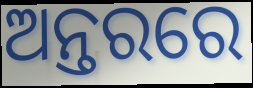
ଅନ୍ତରରେ